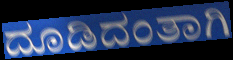
ದೂಡಿದಂತಾಗಿ